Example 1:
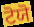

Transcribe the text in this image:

ਟੋਯੋ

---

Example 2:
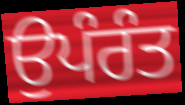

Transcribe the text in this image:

ਉਪੰਰੰਤ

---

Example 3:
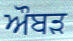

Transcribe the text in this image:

ਔਬੜ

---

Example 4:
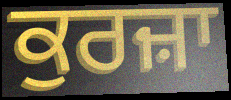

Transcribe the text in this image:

ਕੁਰਜ਼ਾ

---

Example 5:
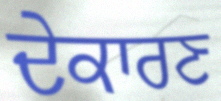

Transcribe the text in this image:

ਦੇਕਾਰਣ